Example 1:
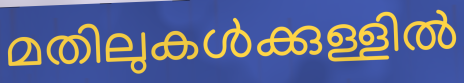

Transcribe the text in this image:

മതിലുകൾക്കുള്ളിൽ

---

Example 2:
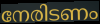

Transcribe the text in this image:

നേരിടണം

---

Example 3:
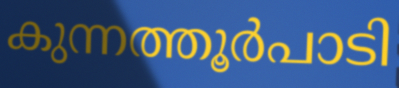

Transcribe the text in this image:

കുന്നത്തൂർപാടി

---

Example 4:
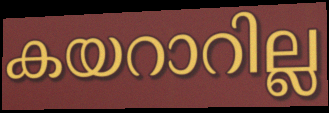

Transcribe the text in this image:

കയറാറില്ല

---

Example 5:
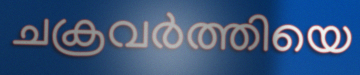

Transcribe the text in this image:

ചക്രവർത്തിയെ